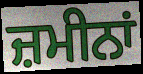
ਜ਼ਮੀਨਾਂ